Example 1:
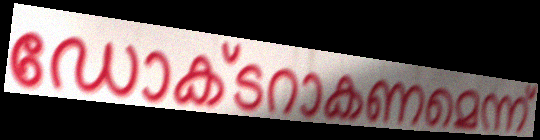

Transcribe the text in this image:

ഡോക്ടറാകണമെന്ന്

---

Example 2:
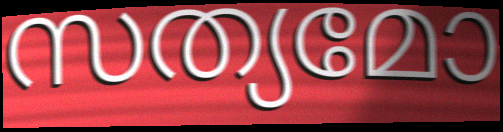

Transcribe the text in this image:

സത്യമോ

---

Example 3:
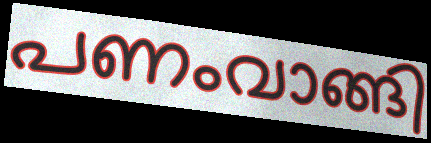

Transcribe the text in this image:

പണംവാങ്ങി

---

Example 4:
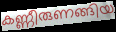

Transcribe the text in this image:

കണ്ണീരുണങ്ങിയ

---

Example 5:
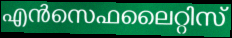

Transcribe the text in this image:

എൻസെഫലൈറ്റിസ്